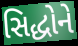
સિદ્ધોને